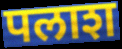
पलाश